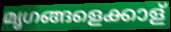
മൃഗങ്ങളെക്കാള്